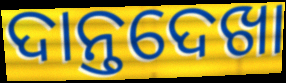
ଦାନ୍ତଦେଖା